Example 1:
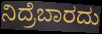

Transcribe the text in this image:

ನಿದ್ರೆಬಾರದು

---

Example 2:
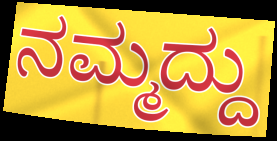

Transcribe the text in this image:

ನಮ್ಮದ್ದು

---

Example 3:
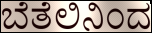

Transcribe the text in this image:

ಬೆತೆಲಿನಿಂದ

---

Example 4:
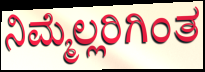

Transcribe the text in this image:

ನಿಮ್ಮೆಲ್ಲರಿಗಿಂತ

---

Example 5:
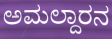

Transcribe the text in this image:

ಅಮಲ್ದಾರನ